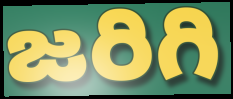
జరిగి